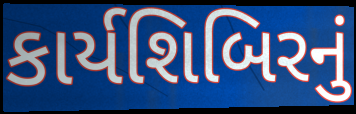
કાર્યશિબિરનું